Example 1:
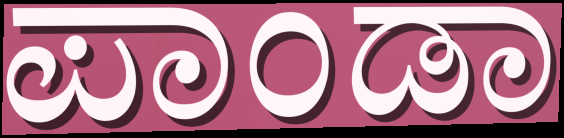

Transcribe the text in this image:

ಪಾಂಡಾ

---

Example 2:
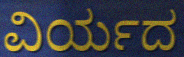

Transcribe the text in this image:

ವಿರ್ಯದ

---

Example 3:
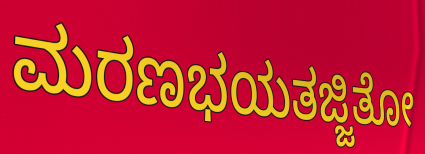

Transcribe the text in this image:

ಮರಣಭಯತಜ್ಜಿತೋ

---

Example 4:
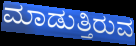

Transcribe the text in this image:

ಮಾಡುತ್ತಿರುವ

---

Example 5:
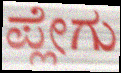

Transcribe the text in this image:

ಪ್ಲೇಗು